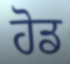
ਹੋਡ